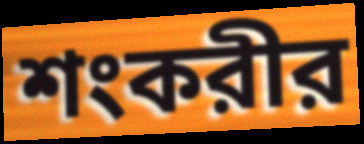
শংকরীর